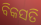
ବିକସତି